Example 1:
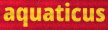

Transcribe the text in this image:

aquaticus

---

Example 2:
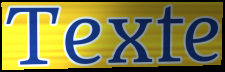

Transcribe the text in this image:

Texte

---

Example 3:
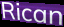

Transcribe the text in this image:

Rican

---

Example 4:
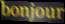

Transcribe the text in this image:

bonjour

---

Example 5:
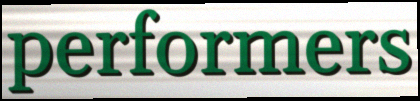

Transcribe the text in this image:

performers